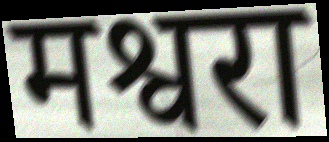
मश्वरा